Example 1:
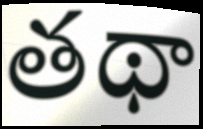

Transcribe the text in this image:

తథా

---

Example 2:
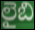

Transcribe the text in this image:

లైబి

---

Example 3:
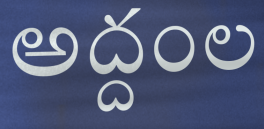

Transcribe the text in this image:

అద్దంల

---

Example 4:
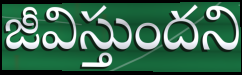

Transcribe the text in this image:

జీవిస్తుందని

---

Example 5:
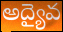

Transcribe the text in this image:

అద్యైవ